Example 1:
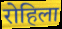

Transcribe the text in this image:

रोहिला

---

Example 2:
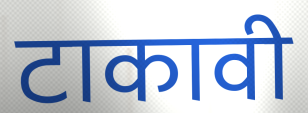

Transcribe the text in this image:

टाकावी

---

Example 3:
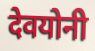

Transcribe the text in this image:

देवयोनी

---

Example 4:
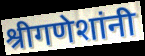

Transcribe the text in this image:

श्रीगणेशांनी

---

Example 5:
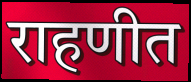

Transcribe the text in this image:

राहणीत